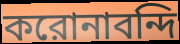
করোনাবন্দি